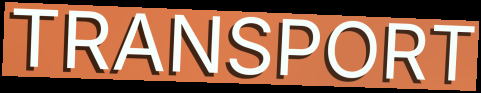
TRANSPORT